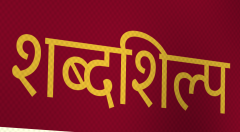
शब्दशिल्प